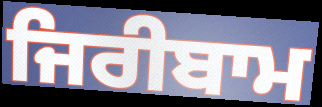
ਜਿਰੀਬਾਮ